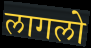
लागलो